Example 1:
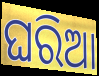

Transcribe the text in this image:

ଘରିଆ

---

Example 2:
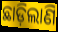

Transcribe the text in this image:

ଛାଡ଼ିଲାଣି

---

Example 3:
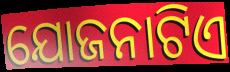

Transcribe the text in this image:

ଯୋଜନାଟିଏ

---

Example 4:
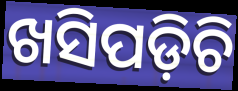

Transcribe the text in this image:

ଖସିପଡ଼ିଚି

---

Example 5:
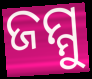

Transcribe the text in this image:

ଜମ୍ମୁ